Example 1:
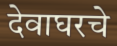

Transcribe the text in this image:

देवाघरचे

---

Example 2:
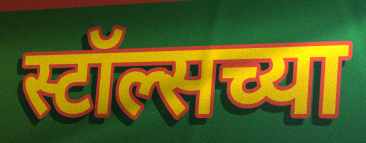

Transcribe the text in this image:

स्टॉल्सच्या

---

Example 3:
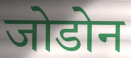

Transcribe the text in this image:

जोडोन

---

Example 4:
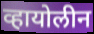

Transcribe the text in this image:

व्हायोलीन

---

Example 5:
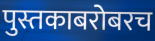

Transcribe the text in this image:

पुस्तकाबरोबरच